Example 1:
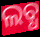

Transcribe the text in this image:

ଲବ୍ଧ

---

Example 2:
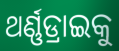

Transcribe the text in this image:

ଥର୍ଣ୍ଣଡ୍ରାଇକୁ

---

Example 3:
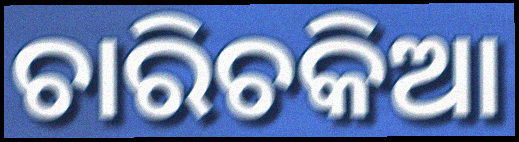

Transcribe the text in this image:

ଚାରିଚକିଆ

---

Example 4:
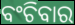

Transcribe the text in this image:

ବଂଚିବାର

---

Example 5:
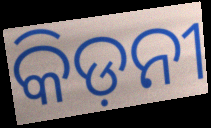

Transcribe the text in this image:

କିଡ଼ନୀ